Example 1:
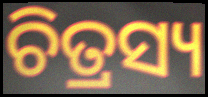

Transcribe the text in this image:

ଚିତ୍ରସ୍ୟ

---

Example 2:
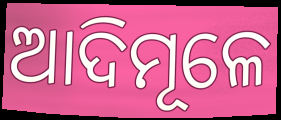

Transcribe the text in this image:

ଆଦିମୂଳେ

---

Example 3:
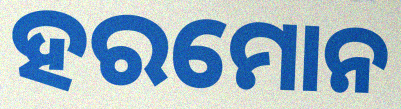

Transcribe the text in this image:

ହରମୋନ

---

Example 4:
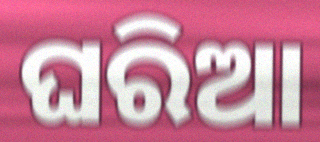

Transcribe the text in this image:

ଘରିଆ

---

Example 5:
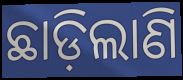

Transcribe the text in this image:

ଛାଡ଼ିଲାଣି